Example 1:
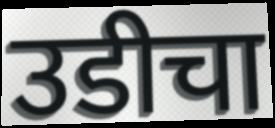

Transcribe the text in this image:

उडीचा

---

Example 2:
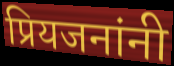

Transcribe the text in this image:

प्रियजनांनी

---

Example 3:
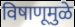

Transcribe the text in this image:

विषाणूमुळे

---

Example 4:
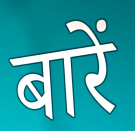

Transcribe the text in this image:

बारें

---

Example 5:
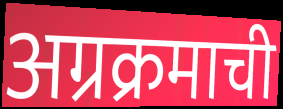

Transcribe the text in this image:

अग्रक्रमाची